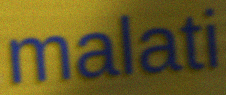
malati